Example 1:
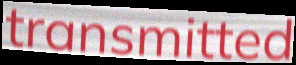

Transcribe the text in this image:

transmitted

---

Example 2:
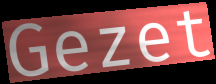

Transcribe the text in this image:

Gezet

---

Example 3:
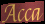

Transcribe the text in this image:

Acca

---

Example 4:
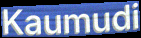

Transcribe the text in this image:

Kaumudi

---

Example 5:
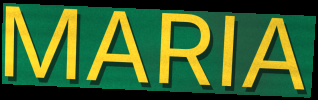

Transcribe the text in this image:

MARIA